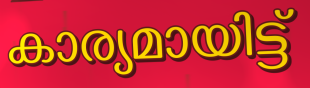
കാര്യമായിട്ട്